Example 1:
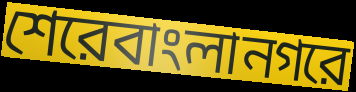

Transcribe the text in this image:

শেরেবাংলানগরে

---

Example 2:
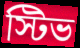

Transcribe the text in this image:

স্টিভ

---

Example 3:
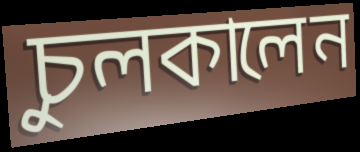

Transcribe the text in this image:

চুলকালেন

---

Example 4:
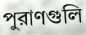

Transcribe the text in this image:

পুরাণগুলি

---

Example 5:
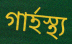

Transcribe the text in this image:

গার্হস্থ্য